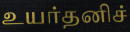
உயர்தனிச்